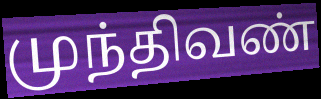
முந்திவண்